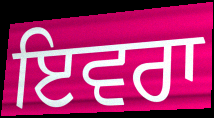
ਇਵਰਾ